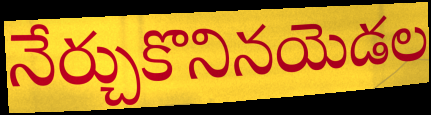
నేర్చుకొనినయెడల